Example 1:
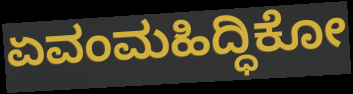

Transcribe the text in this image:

ಏವಂಮಹಿದ್ಧಿಕೋ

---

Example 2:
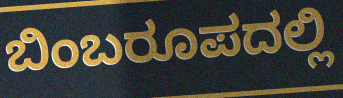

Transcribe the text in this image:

ಬಿಂಬರೂಪದಲ್ಲಿ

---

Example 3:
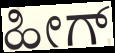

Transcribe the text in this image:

ಹೀಗ್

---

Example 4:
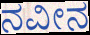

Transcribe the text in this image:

ನವೀನ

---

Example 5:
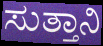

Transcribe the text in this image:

ಸುತ್ತಾನಿ